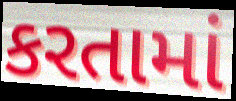
કરતામાં